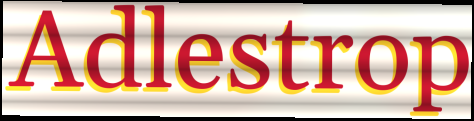
Adlestrop